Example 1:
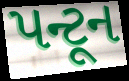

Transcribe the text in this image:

પન્ટૂન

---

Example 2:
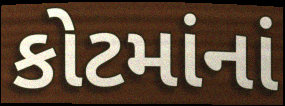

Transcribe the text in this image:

કોટમાંનાં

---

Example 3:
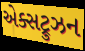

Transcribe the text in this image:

એક્સટ્રુઝન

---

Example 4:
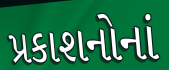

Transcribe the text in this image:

પ્રકાશનોનાં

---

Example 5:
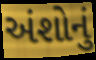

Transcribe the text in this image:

અંશોનું